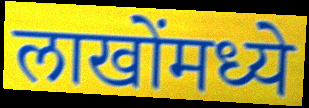
लाखोंमध्ये